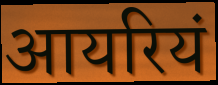
आयरियं